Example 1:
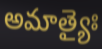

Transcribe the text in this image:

అమాత్యైః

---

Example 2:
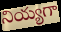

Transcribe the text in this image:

నియ్యగా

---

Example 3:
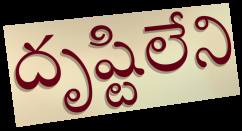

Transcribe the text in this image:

దృష్టిలేని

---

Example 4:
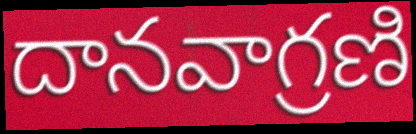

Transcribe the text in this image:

దానవాగ్రణి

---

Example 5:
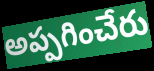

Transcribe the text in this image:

అప్పగించేరు